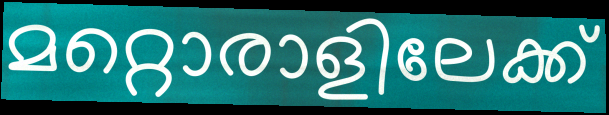
മറ്റൊരാളിലേക്ക്